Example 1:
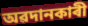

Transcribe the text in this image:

অৱদানকাৰী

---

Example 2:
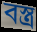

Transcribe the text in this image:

বস্ত্ৰ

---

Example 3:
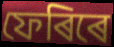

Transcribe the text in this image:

ফেৰিৰে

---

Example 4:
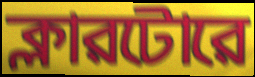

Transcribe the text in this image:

ক্লাৱটোৱে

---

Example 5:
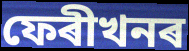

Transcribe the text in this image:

ফেৰীখনৰ